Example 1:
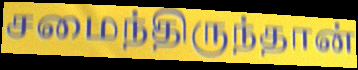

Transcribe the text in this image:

சமைந்திருந்தான்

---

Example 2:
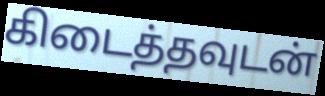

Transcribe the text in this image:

கிடைத்தவுடன்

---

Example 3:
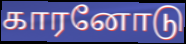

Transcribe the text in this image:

காரனோடு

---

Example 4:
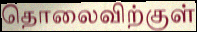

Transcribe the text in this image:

தொலைவிற்குள்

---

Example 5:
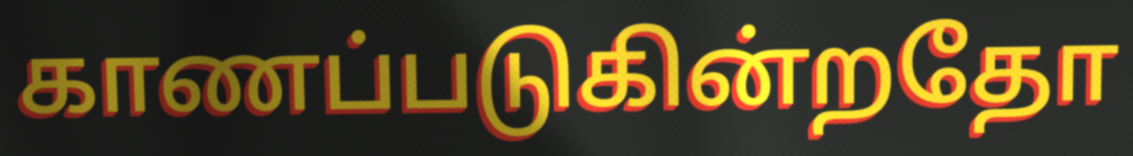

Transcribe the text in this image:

காணப்படுகின்றதோ